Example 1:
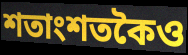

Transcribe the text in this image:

শতাংশতকৈও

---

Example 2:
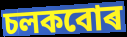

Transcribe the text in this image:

চলকবোৰ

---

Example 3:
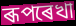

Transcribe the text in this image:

ৰূপৰেখা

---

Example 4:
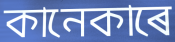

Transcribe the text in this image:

কানেকাৰে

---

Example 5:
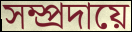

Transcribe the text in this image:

সম্প্ৰদায়ে